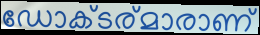
ഡോക്ടര്മാരാണ്